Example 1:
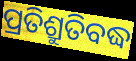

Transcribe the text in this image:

ପ୍ରତିଶ୍ରୁତିବଦ୍ଧ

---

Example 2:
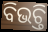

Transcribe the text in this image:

ବିଭଚ୍ତି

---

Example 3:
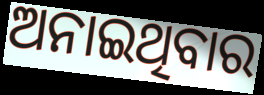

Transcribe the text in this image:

ଅନାଇଥିବାର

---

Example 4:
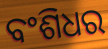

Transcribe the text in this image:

ବଂଶିଧର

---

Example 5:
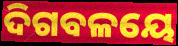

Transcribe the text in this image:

ଦିଗବଳୟେ